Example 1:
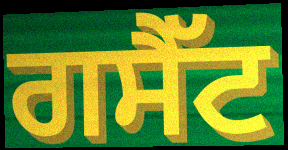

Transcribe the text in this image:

ਗਸੈੱਟ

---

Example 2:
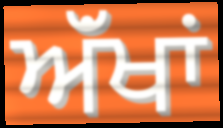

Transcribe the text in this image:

ਅੱਂਖਾਂ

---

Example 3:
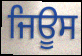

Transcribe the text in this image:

ਜਿਊਸ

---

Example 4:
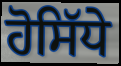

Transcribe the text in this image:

ਹੋਸਿੱਧੇ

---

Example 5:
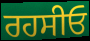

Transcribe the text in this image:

ਰਹਸੀਓ